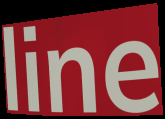
line